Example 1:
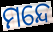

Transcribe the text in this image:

ମନ୍ଦେ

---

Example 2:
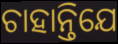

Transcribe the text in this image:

ଚାହାନ୍ତିଯେ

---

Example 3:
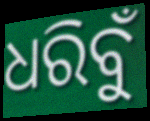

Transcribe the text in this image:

ଧରିବୁଁ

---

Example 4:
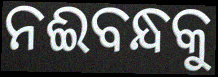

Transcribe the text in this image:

ନଈବନ୍ଧକୁ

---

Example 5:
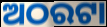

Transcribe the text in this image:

ଅଠରଟା